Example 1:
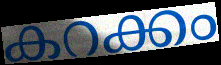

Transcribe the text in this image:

കറക്കം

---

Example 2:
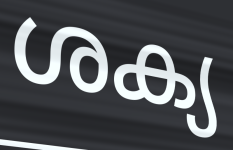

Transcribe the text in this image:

ശക്യ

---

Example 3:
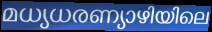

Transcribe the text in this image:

മധ്യധരണ്യാഴിയിലെ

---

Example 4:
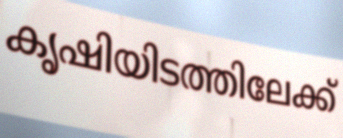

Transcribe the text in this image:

കൃഷിയിടത്തിലേക്ക്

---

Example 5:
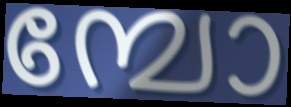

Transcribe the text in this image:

മ്പോ